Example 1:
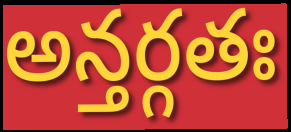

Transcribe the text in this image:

అన్తర్గతః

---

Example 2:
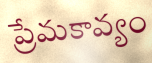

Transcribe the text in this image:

ప్రేమకావ్యం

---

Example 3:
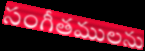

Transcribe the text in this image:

సంగీతములను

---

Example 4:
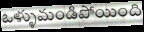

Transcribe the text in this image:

ఒళ్ళుమండిపోయింది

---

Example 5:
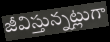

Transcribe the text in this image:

జీవిస్తున్నట్లుగా